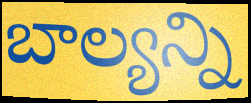
బాల్యన్ని